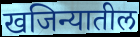
खजिन्यातील